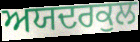
ਅਯਦਰਕੁਲ